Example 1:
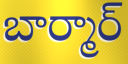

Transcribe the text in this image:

బార్మార్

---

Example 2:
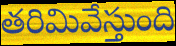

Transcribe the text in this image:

తరిమివేస్తుంది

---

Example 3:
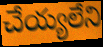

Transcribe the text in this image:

చేయ్యలేని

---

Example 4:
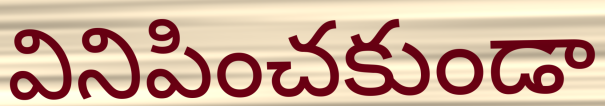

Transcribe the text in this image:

వినిపించకుండా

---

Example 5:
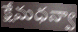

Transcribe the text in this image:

క్షేమధన్వా